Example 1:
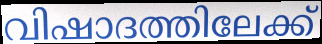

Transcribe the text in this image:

വിഷാദത്തിലേക്ക്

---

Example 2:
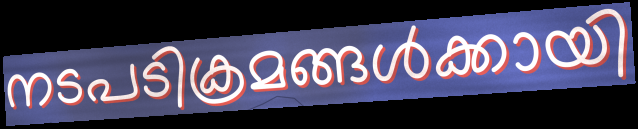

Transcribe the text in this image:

നടപടിക്രമങ്ങൾക്കായി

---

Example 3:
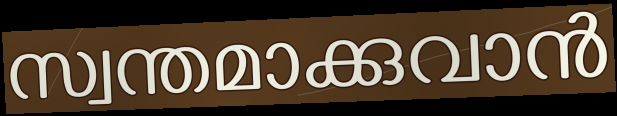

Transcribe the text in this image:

സ്വന്തമാക്കുവാൻ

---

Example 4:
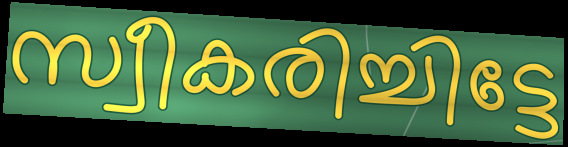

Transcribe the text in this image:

സ്വീകരിച്ചിട്ടേ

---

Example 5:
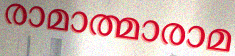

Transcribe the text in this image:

രാമാത്മാരാമ